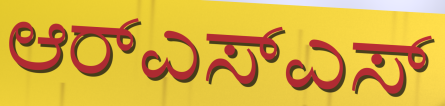
ಆರ್‌ಎಸ್ಎಸ್